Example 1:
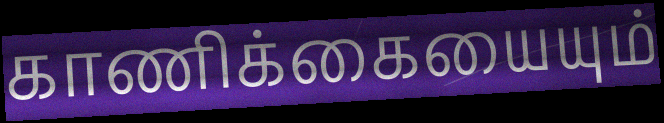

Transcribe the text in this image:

காணிக்கையையும்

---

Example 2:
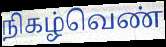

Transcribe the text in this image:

நிகழ்வெண்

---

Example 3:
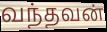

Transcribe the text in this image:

வந்தவன்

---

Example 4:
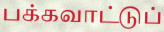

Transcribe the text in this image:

பக்கவாட்டுப்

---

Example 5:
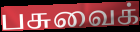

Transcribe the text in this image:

பசுவைக்